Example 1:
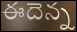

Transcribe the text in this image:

ఈదెన్న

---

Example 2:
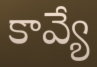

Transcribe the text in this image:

కావ్యే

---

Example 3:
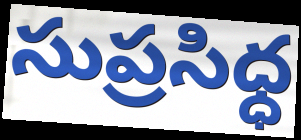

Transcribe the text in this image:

సుప్రసిధ్ధ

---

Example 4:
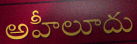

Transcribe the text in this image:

అహీలూదు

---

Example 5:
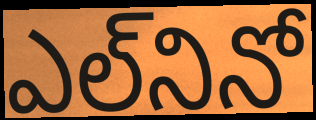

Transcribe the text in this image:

ఎల్‌నినో